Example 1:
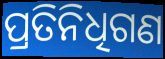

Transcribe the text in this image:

ପ୍ରତିନିଧିଗଣ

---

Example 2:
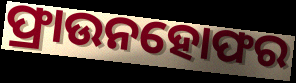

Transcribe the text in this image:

ଫ୍ରାଉନହୋଫର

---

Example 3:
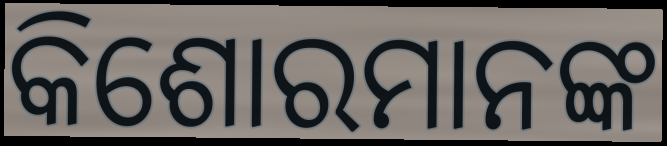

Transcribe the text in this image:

କିଶୋରମାନଙ୍କ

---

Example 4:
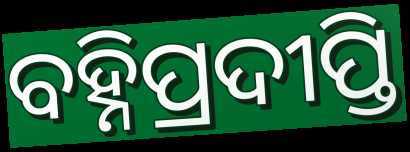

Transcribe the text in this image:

ବହ୍ନିପ୍ରଦୀପ୍ତି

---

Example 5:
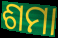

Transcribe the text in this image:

ଶମା